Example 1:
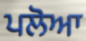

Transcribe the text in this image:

ਪਲੋਆ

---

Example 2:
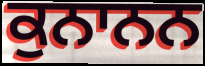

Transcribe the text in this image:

ਕੁਨਾਨਨ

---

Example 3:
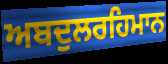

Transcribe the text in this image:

ਅਬਦੁਲਰਹਿਮਾਨ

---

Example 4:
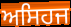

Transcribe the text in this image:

ਅਸਿਹਜ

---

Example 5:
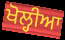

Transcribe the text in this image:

ਖੋਲ੍ਹੀਆ